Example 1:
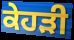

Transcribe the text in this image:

ਕੇਹੜੀ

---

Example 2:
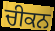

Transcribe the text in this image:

ਚੀਕਨ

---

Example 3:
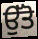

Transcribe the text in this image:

ਉੱਤੋ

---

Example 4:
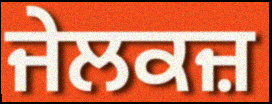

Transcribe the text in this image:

ਜੇਲਕਜ਼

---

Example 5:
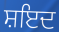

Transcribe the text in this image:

ਸ਼ਇਦ